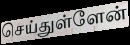
செய்துள்ளேன்